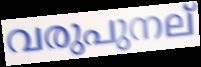
വരുപുനല്